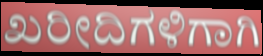
ಖರೀದಿಗಳಿಗಾಗಿ